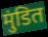
मुंडित